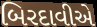
બિરદાવીએ